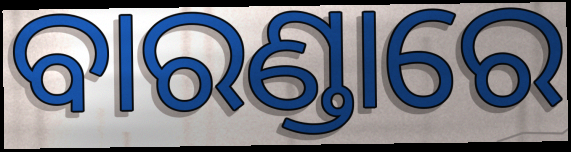
ବାରଣ୍ଡାରେ